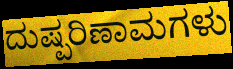
ದುಷ್ಪರಿಣಾಮಗಳು